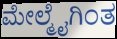
ಮೇಲ್ಮೈಗಿಂತ